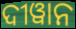
ଦୀୱାନ